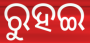
ରୁହଇ